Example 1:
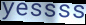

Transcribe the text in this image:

yessss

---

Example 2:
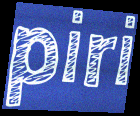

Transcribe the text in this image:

piri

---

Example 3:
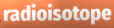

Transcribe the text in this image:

radioisotope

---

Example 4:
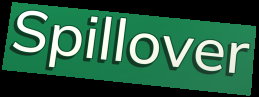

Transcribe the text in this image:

Spillover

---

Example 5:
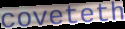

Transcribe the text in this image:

coveteth